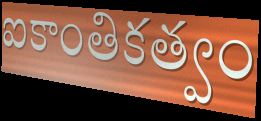
ఐకాంతికత్వం